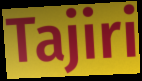
Tajiri